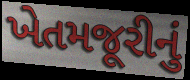
ખેતમજૂરીનું